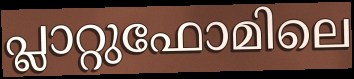
പ്ലാറ്റുഫോമിലെ